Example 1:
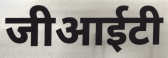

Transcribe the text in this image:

जीआईटी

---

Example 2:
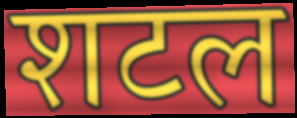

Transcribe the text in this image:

शटल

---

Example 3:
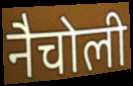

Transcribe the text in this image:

नैचोली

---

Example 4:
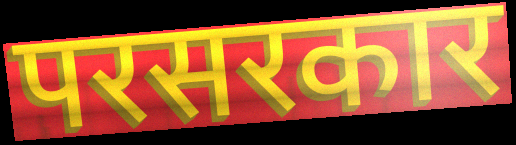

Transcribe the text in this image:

परसरकार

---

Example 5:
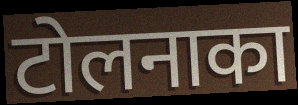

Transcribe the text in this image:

टोलनाका